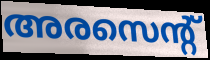
അരസെന്റ്